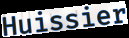
Huissier